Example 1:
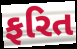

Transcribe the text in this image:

ફરિત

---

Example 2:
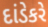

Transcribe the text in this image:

દાંડેકરે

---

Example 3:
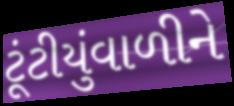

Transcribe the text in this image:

ટૂંટીયુંવાળીને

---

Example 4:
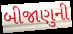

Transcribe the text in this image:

બીજાણુની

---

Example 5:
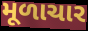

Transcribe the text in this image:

મૂળાચાર